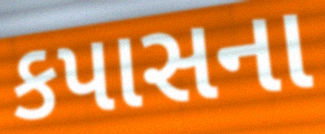
કપાસના